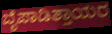
ಬೈಪಾಡಿತ್ತಾಯರ